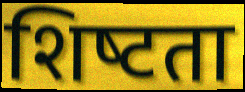
शिष्‍टता